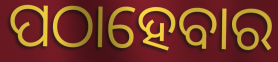
ପଠାହେବାର